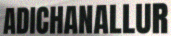
ADICHANALLUR